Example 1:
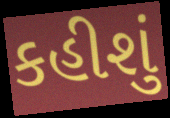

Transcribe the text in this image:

કહીશું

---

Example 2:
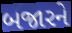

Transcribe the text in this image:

બજારને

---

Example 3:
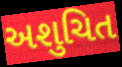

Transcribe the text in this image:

અશુચિત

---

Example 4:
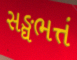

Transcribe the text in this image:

સઙ્ઘભત્તં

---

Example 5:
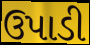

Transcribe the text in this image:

ઉપાડી